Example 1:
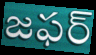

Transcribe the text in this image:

జఫర్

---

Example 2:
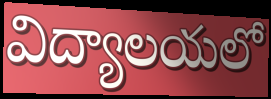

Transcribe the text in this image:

విద్యాలయలో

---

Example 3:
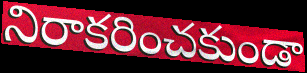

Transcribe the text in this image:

నిరాకరించకుండా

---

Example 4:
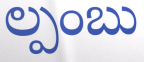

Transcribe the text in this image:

ల్పంబు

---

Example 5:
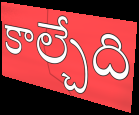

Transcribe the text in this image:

కాల్చేది